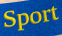
Sport